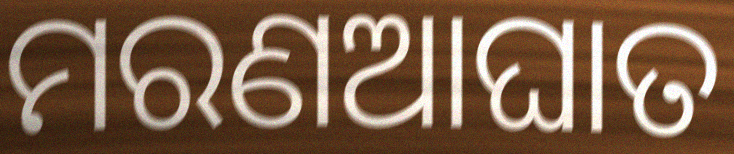
ମରଣଆଘାତ